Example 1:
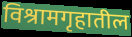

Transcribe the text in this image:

विश्रामगृहातील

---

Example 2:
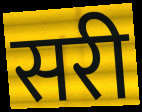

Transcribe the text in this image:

सरी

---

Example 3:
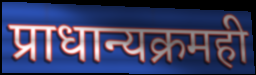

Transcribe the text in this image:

प्राधान्यक्रमही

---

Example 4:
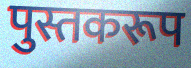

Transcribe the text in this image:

पुस्तकरूप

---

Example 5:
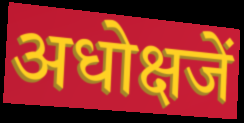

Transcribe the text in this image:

अधोक्षजें